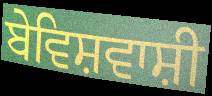
ਬੇਵਿਸ਼ਵਾਸ਼ੀ